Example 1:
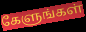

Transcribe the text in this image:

கேளுங்கள்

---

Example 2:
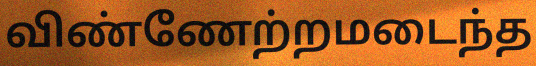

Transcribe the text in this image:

விண்ணேற்றமடைந்த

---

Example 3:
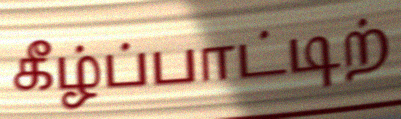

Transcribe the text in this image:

கீழ்ப்பாட்டிற்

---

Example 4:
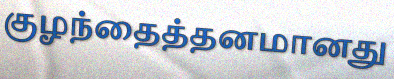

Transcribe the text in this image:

குழந்தைத்தனமானது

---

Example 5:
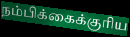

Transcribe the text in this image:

நம்பிக்கைக்குரிய